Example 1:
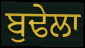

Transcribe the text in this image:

ਬੁਢੇਲਾ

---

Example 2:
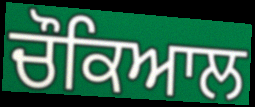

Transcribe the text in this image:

ਚੌਕਿਆਲ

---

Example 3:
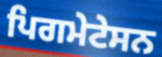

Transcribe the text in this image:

ਪਿਗਮੇਟੇਸਨ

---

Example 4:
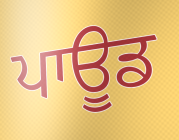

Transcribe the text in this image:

ਪਾਊਡ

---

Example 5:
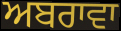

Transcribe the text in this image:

ਅਬਰਾਵਾ